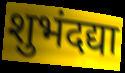
शुभंदद्या